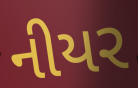
નીયર